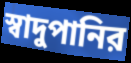
স্বাদুপানির